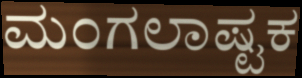
ಮಂಗಲಾಷ್ಟಕ